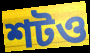
শটও